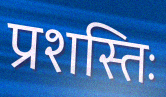
प्रशस्तिः